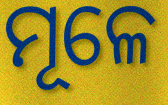
ମୂଳେ